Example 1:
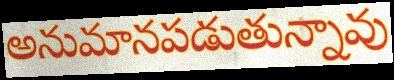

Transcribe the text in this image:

అనుమానపడుతున్నావు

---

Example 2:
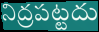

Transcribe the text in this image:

నిద్రపట్టదు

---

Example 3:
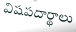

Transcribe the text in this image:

విషపదార్థాలు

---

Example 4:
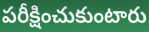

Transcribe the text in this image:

పరీక్షించుకుంటారు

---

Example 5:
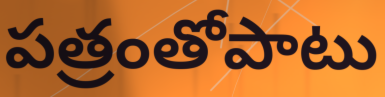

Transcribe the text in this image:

పత్రంతోపాటు